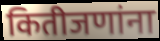
कितीजणांना